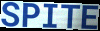
SPITE